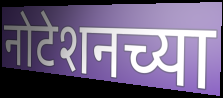
नोटेशनच्या